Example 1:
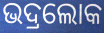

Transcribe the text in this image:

ଭଦ୍ରଲୋକ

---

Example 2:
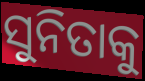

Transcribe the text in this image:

ସୁନିତାକୁ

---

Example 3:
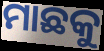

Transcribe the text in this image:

ମାଛକୁ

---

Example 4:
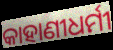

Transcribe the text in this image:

କାହାଣୀଧର୍ମୀ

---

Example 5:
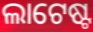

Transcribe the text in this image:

ଲାଟେଷ୍ଟ